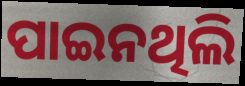
ପାଇନଥିଲି